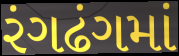
રંગઢંગમાં